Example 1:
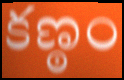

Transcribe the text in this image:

కణ్ఠం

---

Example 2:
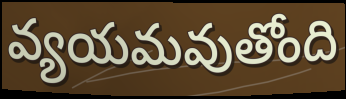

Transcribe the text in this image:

వ్యయమవుతోంది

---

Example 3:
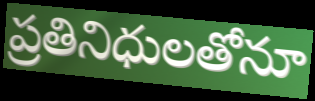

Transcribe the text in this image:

ప్రతినిధులతోనూ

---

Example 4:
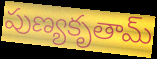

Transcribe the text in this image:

పుణ్యకృతామ్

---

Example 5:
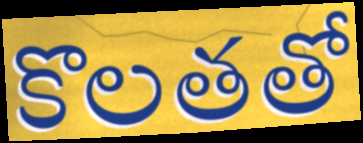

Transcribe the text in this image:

కొలతతో